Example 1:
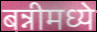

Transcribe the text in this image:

बन्नीमध्ये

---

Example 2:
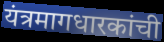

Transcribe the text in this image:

यंत्रमागधारकांची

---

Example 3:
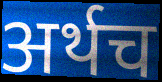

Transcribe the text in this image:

अर्थच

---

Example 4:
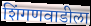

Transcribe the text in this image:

शिंगणवाडीला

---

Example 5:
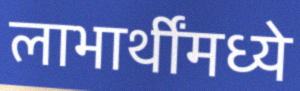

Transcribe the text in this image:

लाभार्थींमध्ये